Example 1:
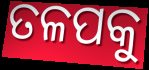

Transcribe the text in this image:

ତଳପକୁ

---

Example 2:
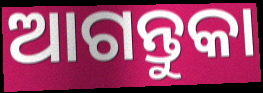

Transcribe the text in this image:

ଆଗନ୍ତୁକା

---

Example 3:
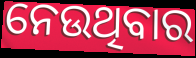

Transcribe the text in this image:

ନେଉଥିବାର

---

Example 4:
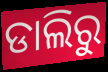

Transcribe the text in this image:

ଡାଲିରୁ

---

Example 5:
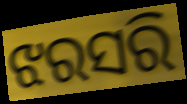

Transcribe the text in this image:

ଝରସରି